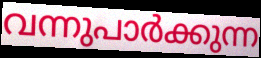
വന്നുപാർക്കുന്ന